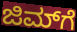
ಜಿಮ್‌ಗೆ